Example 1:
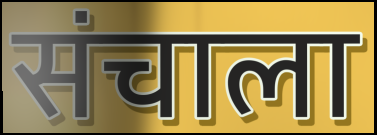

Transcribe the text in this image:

संचाला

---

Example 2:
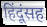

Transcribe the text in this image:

हिंदूंसह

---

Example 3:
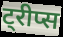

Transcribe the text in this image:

ट्रीप्स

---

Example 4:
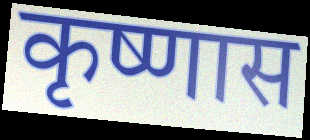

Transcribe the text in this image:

कृष्णास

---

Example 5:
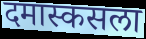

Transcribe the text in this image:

दमास्कसला